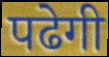
पढेगी